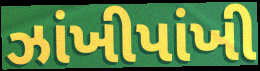
ઝાંખીપાંખી